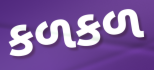
કળકળ